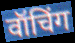
वॉचिंग